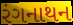
રંગનાથન